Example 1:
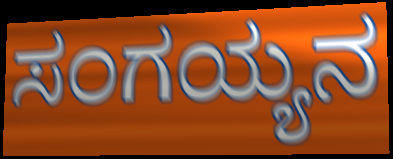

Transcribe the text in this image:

ಸಂಗಯ್ಯನ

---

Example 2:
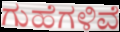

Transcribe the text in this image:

ಗುಹೆಗಳಿವೆ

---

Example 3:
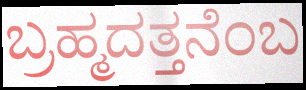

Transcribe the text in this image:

ಬ್ರಹ್ಮದತ್ತನೆಂಬ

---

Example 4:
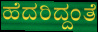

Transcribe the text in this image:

ಹೆದರಿದ್ದಂತೆ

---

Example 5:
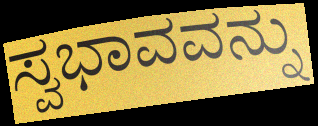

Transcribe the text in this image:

ಸ್ವಭಾವವನ್ನು